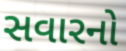
સવારનો